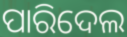
ପାରିଦେଲ